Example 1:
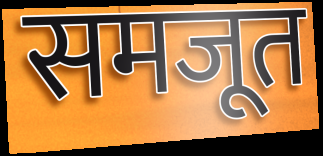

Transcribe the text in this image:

समजूत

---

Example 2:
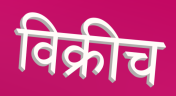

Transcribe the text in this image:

विक्रीच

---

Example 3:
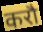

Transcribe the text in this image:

करौ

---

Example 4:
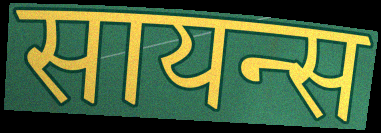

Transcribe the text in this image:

सायन्स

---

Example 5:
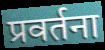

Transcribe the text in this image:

प्रवर्तना